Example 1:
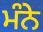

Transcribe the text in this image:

ਮੰਨੇ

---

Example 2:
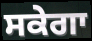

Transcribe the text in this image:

ਸਕੇਗਾ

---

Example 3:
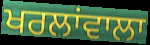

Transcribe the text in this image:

ਖਰਲਾਂਵਾਲਾ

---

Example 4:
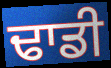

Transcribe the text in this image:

ਢਾਡੀ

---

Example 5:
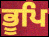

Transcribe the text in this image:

ਭੂਪਿ